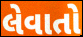
લેવાતો